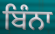
ਬਿੰਨਾ